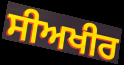
ਸੀਅਖੀਰ